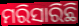
ମରିସାରିଛି